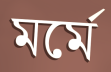
মৰ্মে